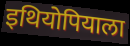
इथियोपियाला